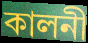
কালনী